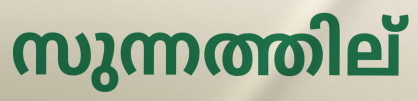
സുന്നത്തില്